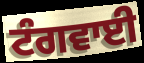
ਟੰਗਵਾਈ